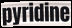
pyridine